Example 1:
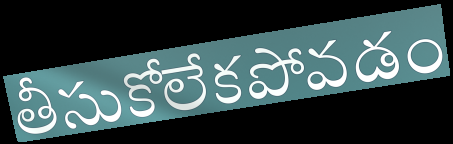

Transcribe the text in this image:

తీసుకోలేకపోవడం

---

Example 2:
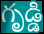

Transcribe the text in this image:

గృడ్డి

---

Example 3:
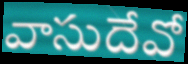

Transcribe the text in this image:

వాసుదేవో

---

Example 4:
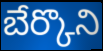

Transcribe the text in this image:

బేర్కొని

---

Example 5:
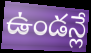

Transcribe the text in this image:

ఉండన్లే